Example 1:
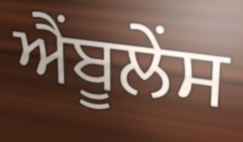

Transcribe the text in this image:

ਐਂਬੂਲੇਂਸ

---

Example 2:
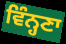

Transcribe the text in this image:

ਵਿੰਨ੍ਹਣਾ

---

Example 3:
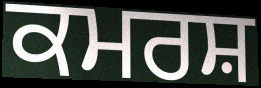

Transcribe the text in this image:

ਕਮਰਸ਼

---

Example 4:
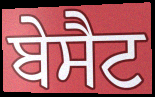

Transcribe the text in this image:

ਬੇਸੈਟ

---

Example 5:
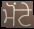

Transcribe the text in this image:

ਮੋਂਟੇ